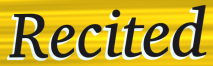
Recited